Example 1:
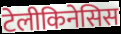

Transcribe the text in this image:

टेलीकिनेसिस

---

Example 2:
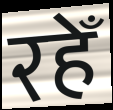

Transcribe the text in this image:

रहेँ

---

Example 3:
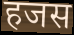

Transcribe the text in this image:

हजस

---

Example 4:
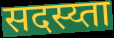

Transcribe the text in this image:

सदस्य्ता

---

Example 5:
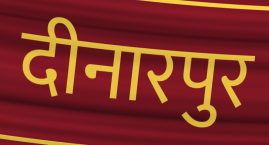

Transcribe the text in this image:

दीनारपुर